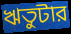
ঋতুটার